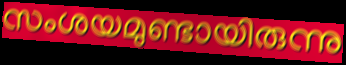
സംശയമുണ്ടായിരുന്നു